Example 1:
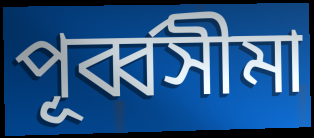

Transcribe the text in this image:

পূর্ব্বসীমা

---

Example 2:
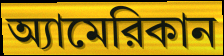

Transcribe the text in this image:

অ্যামেরিকান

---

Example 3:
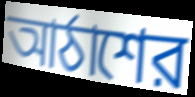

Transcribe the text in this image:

আঠাশের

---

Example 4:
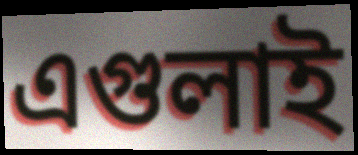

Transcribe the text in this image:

এগুলাই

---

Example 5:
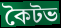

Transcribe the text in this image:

কৈটভ